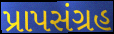
પ્રાપસંગ્રહ